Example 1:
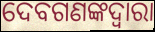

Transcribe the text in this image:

ଦେବଗଣଙ୍କଦ୍ୱାରା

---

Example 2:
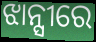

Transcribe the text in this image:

ଝାନ୍ସୀରେ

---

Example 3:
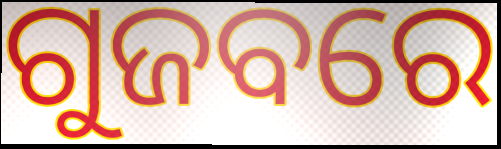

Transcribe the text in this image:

ଗୁଜବରେ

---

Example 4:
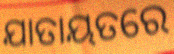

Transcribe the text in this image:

ଯାତାୟତରେ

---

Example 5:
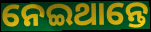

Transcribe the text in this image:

ନେଇଥାନ୍ତେ